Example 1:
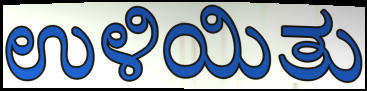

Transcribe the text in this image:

ಉಳಿಯಿತು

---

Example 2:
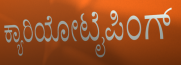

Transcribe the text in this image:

ಕ್ಯಾರಿಯೋಟೈಪಿಂಗ್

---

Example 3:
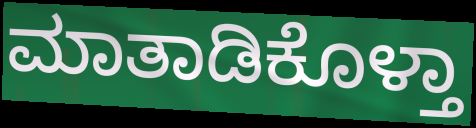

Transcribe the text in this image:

ಮಾತಾಡಿಕೊಳ್ತಾ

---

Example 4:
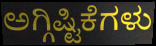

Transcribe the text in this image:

ಅಗ್ಗಿಷ್ಟಿಕೆಗಳು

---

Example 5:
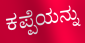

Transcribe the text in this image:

ಕಪ್ಪೆಯನ್ನು